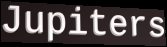
Jupiters